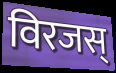
विरजस्